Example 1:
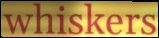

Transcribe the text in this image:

whiskers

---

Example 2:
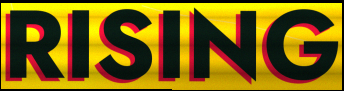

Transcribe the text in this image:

RISING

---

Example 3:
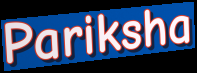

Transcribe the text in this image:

Pariksha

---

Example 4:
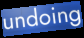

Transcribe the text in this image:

undoing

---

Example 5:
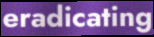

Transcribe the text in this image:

eradicating